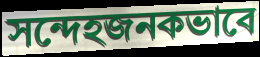
সন্দেহজনকভাবে